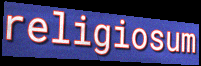
religiosum